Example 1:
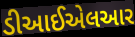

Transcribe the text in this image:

ડીઆઈએલઆર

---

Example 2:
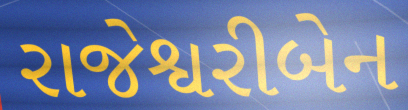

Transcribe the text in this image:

રાજેશ્વરીબેન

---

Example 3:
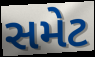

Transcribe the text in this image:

સમેટ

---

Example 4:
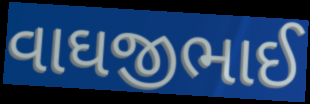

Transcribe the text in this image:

વાઘજીભાઈ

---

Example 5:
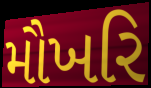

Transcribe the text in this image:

મૌખરિ